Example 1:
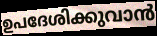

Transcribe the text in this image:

ഉപദേശിക്കുവാൻ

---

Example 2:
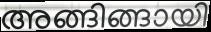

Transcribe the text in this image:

അങ്ങിങ്ങായി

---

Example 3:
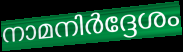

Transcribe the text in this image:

നാമനിർദ്ദേശം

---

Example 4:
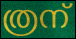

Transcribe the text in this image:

ത്രന്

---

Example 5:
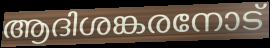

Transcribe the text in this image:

ആദിശങ്കരനോട്